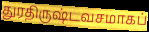
துரதிருஷ்டவசமாகப்